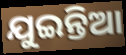
ଯୁଇନ୍ତିଆ